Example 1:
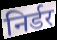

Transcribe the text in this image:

निर्डर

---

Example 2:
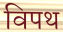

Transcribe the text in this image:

विपथ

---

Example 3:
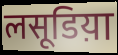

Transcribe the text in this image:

लसूडिय़ा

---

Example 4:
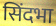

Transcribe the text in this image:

सिंदभा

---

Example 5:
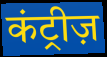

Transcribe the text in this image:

कंट्रीज़